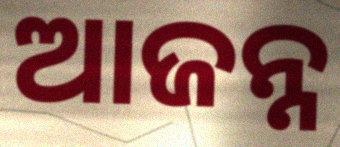
ଆଜନ୍ନ